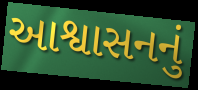
આશ્વાસનનું